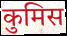
कुमिस